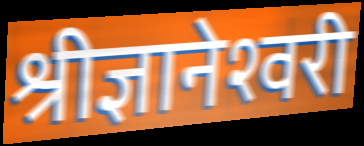
श्रीज्ञानेश्वरी